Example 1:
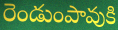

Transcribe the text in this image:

రెండుంపావుకి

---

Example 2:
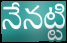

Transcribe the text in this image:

నేనట్టి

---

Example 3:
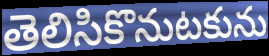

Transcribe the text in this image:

తెలిసికొనుటకును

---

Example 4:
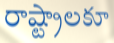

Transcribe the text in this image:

రాష్ట్రాలకూ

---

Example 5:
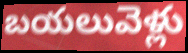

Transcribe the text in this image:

బయలువెళ్లు